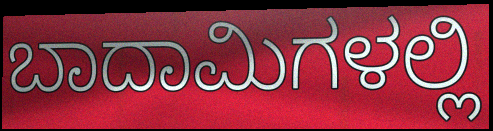
ಬಾದಾಮಿಗಳಲ್ಲಿ